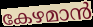
കേഴമാൻ